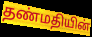
தண்மதியின்